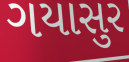
ગયાસુર